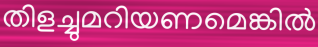
തിളച്ചുമറിയണമെങ്കിൽ